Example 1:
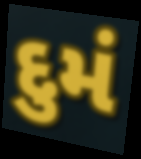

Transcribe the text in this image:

દુમં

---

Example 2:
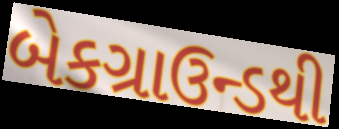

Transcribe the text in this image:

બેકગ્રાઉન્ડથી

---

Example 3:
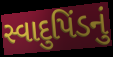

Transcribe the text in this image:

સ્વાદુપિંડનું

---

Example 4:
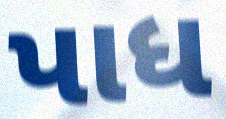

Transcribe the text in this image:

પાધ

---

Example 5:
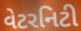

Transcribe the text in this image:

વેટરનિટી